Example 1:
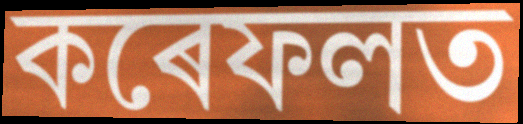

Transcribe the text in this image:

কৰেফলত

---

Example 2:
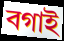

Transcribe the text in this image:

বগাই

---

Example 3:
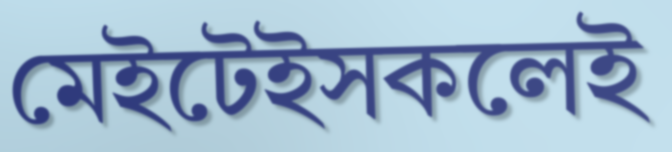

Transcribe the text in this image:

মেইটেইসকলেই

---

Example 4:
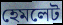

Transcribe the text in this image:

হেমলেট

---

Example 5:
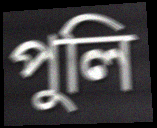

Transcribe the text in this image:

পুলি